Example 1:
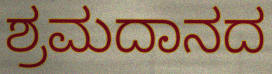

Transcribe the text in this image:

ಶ್ರಮದಾನದ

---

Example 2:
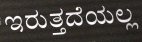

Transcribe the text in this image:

ಇರುತ್ತದೆಯಲ್ಲ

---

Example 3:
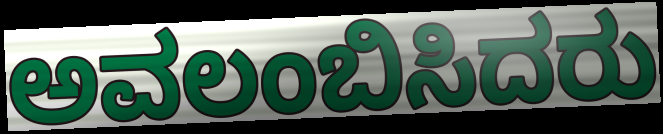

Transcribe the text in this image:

ಅವಲಂಬಿಸಿದರು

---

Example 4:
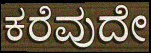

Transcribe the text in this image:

ಕರೆವುದೇ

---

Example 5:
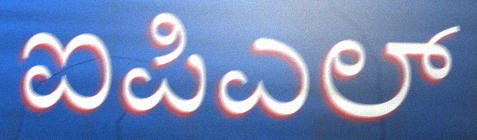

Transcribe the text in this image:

ಐಪಿಎಲ್